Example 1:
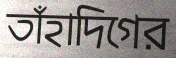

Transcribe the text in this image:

তাঁহাদিগের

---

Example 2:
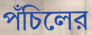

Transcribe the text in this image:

পঁচিলের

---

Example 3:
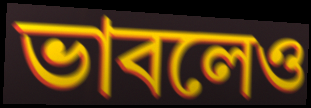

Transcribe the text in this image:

ভাবলেও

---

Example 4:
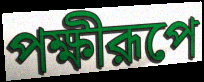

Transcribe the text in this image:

পক্ষীরূপে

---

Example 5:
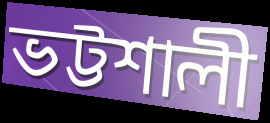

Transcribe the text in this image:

ভট্টশালী